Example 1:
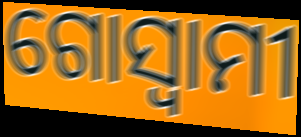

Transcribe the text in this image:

ଗୋସ୍ୱାମୀ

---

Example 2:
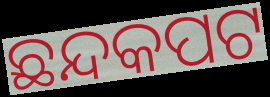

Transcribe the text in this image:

ଛନ୍ଦକପଟ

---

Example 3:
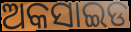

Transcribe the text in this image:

ଅକସାଇଡ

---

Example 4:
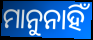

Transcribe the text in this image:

ମାନୁନାହିଁ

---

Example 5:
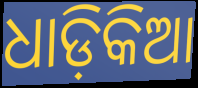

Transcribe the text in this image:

ଧାଡ଼ିକିଆ